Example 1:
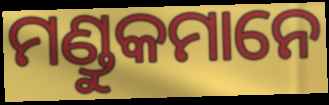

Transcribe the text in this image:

ମଣ୍ଡୁକମାନେ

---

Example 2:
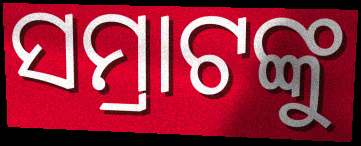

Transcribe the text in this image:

ସମ୍ରାଟଙ୍କୁ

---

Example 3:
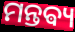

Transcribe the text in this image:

ମନ୍ତଵ୍ୟ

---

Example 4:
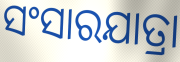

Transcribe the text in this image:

ସଂସାରଯାତ୍ରା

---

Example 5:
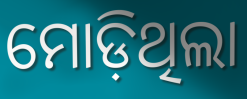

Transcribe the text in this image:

ମୋଡ଼ିଥିଲା